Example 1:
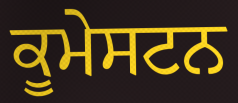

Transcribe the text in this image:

ਕੂਮੇਸਟਨ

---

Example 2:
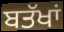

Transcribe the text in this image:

ਬਤੱਖਾਂ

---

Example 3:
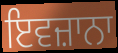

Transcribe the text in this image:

ਇਵਜ਼ਾਨਾ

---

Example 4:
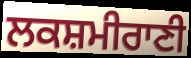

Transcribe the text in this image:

ਲਕਸ਼ਮੀਰਾਣੀ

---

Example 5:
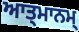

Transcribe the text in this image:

ਆਤ੍ਮਾਨਮ੍